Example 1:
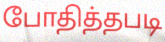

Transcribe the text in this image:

போதித்தபடி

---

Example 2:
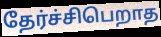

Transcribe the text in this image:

தேர்ச்சிபெறாத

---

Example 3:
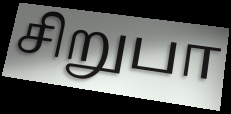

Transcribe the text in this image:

சிறுபா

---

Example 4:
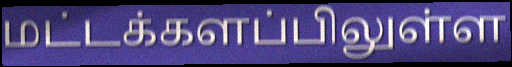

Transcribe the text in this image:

மட்டக்களப்பிலுள்ள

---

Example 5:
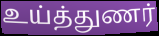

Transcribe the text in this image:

உய்த்துணர்